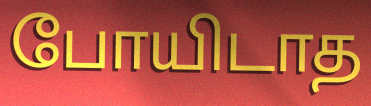
போயிடாத